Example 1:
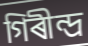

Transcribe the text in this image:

গিৰীন্দ্ৰ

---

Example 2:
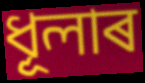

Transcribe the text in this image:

ধূলাৰ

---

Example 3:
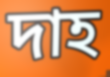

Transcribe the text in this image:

দাহ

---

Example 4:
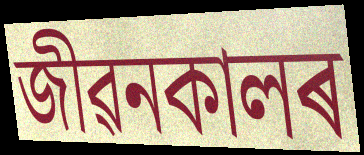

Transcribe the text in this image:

জীৱনকালৰ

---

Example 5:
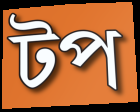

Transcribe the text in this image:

টপ